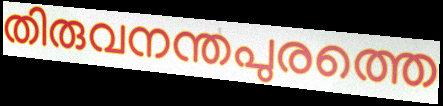
തിരുവനന്തപുരത്തെ